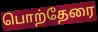
பொற்தேரை